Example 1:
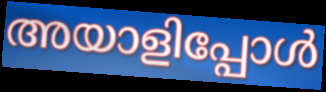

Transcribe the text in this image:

അയാളിപ്പോൾ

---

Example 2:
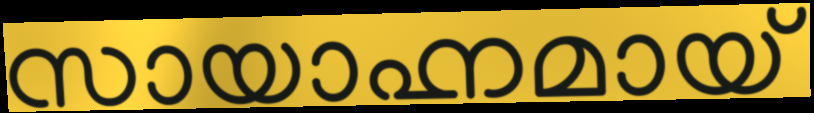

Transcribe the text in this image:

സായാഹ്നമായ്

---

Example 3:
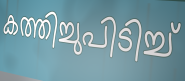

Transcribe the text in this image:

കത്തിച്ചുപിടിച്ച്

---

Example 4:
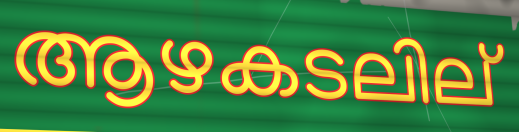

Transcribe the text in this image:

ആഴകടലില്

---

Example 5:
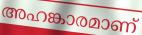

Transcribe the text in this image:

അഹങ്കാരമാണ്